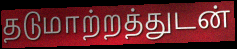
தடுமாற்றத்துடன்